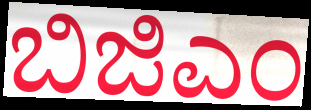
ಬಿಜಿಎಂ